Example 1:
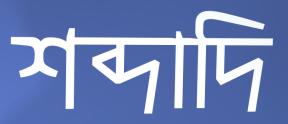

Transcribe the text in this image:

শব্দাদি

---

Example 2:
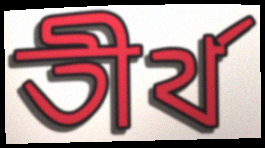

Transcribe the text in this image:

তীর্থ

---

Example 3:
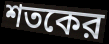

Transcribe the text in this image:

শতকের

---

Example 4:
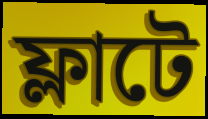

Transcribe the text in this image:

ফ্লাটে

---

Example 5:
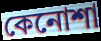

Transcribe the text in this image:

কেনোশা